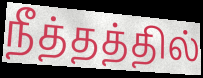
நீத்தத்தில்